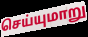
செய்யுமாறு